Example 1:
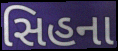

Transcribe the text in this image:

સિહના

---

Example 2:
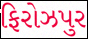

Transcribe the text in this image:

ફિરોઝપુર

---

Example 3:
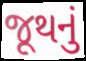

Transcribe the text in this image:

જૂથનું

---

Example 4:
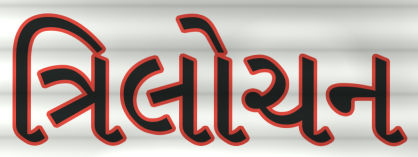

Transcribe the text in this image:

ત્રિલોચન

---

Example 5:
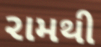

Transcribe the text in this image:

રામથી